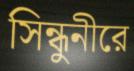
সিন্ধুনীরে